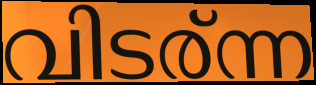
വിടര്ന്ന